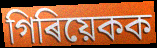
গিৰিয়েকক